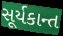
સૂર્યકાન્ત